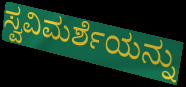
ಸ್ವವಿಮರ್ಶೆಯನ್ನು